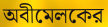
অবীমেলকের